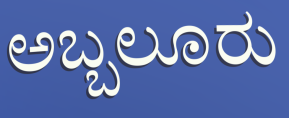
ಅಬ್ಬಲೂರು